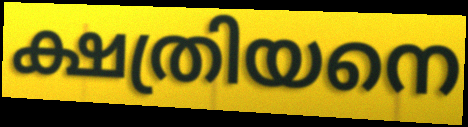
ക്ഷത്രിയനെ